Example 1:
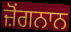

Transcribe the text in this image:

ਜ਼ੋਂਗਨਾਨ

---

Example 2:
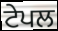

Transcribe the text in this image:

ਟੇਪਲ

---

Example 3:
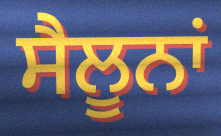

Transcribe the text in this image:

ਸੈਲੂਨਾਂ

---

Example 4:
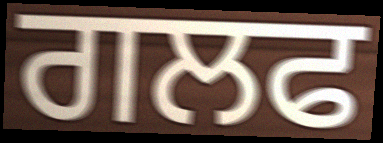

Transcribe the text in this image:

ਗਲਫ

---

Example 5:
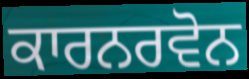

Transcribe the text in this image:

ਕਾਰਨਰਵੋਨ